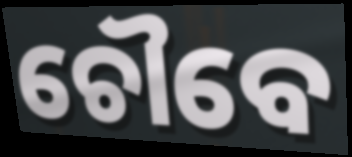
ଚୌବେ